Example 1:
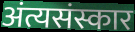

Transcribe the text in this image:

अंत्यसंस्कार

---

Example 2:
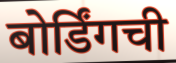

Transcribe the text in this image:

बोर्डिंगची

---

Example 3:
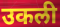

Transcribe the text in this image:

उकली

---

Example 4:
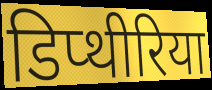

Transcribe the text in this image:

डिप्थीरिया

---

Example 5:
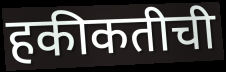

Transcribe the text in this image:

हकीकतीची